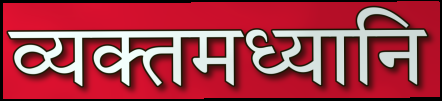
व्यक्तमध्यानि